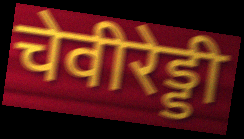
चेवीरेड्डी